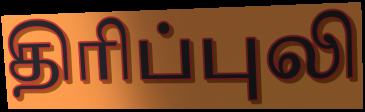
திரிப்புலி